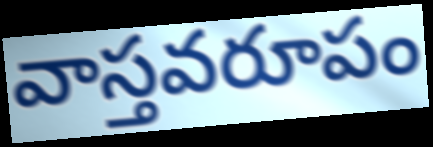
వాస్తవరూపం